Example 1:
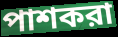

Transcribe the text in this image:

পাশকরা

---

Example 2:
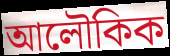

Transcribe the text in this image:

আলৌকিক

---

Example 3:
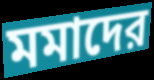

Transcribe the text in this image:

মমাদের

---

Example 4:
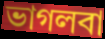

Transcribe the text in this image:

ভাগলবা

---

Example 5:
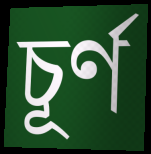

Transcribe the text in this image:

চূর্ণ